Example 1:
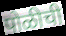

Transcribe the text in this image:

पोळीची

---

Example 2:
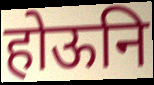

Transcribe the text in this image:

होऊनि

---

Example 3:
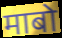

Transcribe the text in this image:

माबो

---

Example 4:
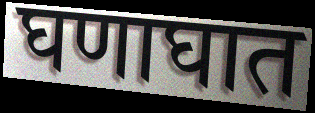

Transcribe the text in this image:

घणाघात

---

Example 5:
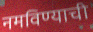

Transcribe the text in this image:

नमविण्याची